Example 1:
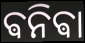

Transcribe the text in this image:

ଵନିଵା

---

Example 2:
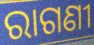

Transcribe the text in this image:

ରାଗଣୀ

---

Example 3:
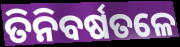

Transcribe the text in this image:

ତିନିବର୍ଷତଳେ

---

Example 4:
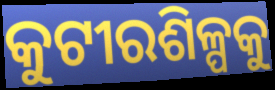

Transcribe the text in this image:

କୁଟୀରଶିଳ୍ପକୁ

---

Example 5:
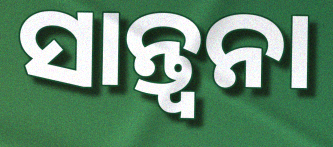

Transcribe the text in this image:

ସାନ୍ତ୍ୱନା